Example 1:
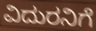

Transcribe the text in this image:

ವಿದುರನಿಗೆ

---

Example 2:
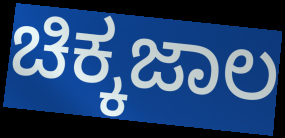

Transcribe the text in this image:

ಚಿಕ್ಕಜಾಲ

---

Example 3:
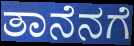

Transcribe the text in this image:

ತಾನೆನಗೆ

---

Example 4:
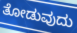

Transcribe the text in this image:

ತೋಡುವುದು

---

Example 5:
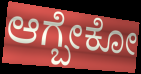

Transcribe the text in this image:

ಆಗ್ಬೇಕೋ